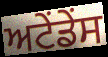
ਅਟੇਂਡੇਂਸ